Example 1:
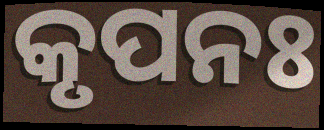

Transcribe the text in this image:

କୃପନଃ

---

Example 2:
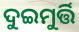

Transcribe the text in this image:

ଦୁଇମୁର୍ତ୍ତି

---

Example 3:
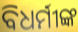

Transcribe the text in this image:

ବିଧର୍ମୀଙ୍କ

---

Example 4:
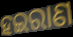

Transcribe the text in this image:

ହଇରାଣ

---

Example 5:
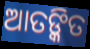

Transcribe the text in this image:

ଆତଙ୍କିତ